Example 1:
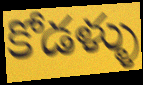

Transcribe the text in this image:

కోడళ్ళు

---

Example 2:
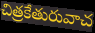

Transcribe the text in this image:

చిత్రకేతురువాచ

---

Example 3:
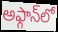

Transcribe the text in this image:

అఫ్గాన్‌లో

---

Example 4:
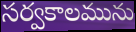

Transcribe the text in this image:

సర్వకాలమును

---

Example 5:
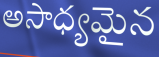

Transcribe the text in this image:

అసాధ్యమైన